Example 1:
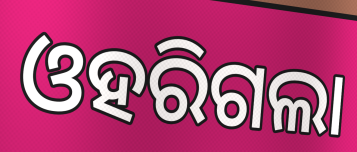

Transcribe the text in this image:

ଓହରିଗଲା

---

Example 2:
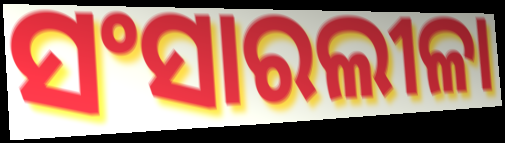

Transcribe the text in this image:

ସଂସାରଲୀଳା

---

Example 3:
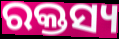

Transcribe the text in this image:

ରକ୍ତସ୍ୟ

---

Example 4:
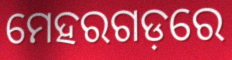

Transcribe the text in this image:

ମେହରଗଡ଼ରେ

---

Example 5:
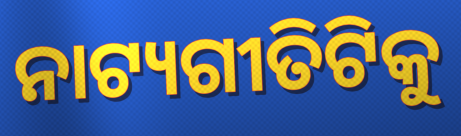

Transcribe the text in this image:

ନାଟ୍ୟଗୀତିଟିକୁ